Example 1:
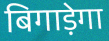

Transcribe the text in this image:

बिगाड़ेगा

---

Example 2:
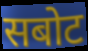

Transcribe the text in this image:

सबोट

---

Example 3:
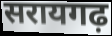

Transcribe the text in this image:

सरायगढ़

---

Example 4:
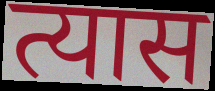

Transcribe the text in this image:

त्यास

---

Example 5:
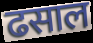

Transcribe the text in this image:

ढसाल